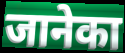
जानेका